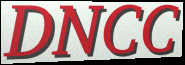
DNCC